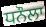
ਧਨੌਲਾ